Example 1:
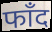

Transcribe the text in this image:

फाँद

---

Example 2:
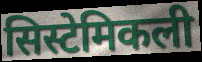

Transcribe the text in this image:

सिस्टेमिकली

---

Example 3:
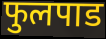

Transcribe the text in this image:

फुलपाड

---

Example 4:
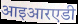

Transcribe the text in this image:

आइआरएडी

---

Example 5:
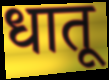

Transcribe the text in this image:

धातू